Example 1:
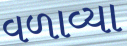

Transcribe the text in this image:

વળાવ્યા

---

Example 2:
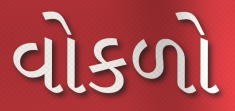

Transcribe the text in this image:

વોકળો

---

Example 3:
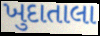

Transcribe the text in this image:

ખુદાતાલા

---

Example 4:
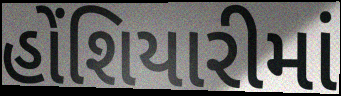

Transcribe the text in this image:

હોંશિયારીમાં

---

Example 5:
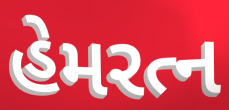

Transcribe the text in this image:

હેમરત્ન